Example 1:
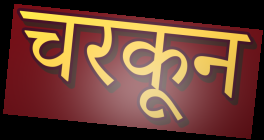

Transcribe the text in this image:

चरकून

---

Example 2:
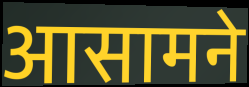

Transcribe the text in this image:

आसामने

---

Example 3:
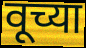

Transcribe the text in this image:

वूच्या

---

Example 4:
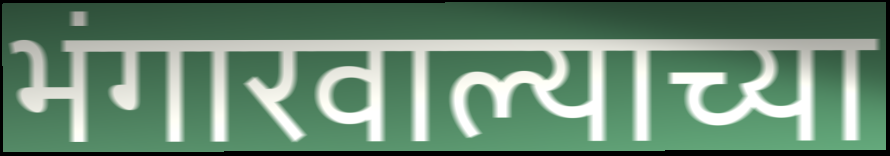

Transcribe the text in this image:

भंगारवाल्याच्या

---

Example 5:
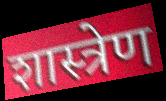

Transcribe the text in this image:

शास्त्रेण